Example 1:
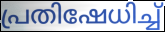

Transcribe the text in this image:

പ്രതിഷേധിച്ച്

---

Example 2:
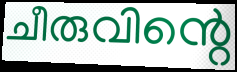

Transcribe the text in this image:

ചീരുവിന്റെ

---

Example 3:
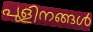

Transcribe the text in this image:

പുളിനങ്ങൾ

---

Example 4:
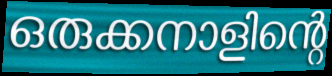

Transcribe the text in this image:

ഒരുക്കനാളിന്റെ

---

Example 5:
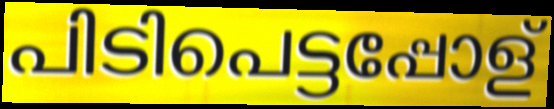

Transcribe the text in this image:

പിടിപെട്ടപ്പോള്